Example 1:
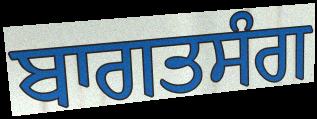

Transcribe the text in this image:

ਬਾਗਤਸੰਗ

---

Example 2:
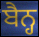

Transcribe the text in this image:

ਬੈਨ੍ਹ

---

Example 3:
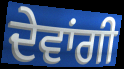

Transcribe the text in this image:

ਦੇਵਾਂਗੀ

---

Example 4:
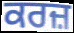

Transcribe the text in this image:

ਕਰਜ਼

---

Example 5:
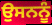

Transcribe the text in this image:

ਉਸਨਨੂੰ